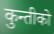
कुन्तीको